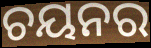
ଚୟନର